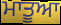
ਮਾਤੂਆ